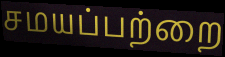
சமயப்பற்றை